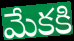
మేకకి